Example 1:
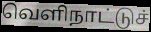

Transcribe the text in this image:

வெளிநாட்டுச்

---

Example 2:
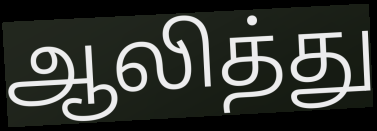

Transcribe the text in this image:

ஆலித்து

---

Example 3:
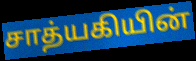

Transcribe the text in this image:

சாத்யகியின்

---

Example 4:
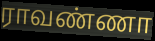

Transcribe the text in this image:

ராவண்ணா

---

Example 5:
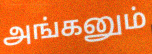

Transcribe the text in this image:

அங்கனும்